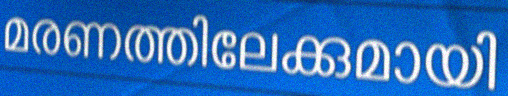
മരണത്തിലേക്കുമായി